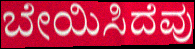
ಬೇಯಿಸಿದೆವು